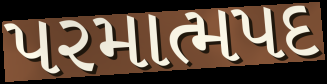
પરમાત્મપદ